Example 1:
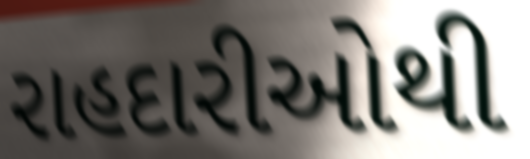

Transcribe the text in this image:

રાહદારીઓથી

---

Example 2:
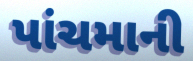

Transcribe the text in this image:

પાંચમાની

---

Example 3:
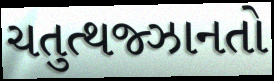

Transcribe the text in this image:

ચતુત્થજ્ઝાનતો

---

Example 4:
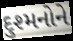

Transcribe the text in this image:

દુશ્મનોને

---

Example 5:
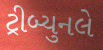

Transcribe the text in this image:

ટ્રીબ્યુનલે